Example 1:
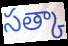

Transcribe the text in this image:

సత్కా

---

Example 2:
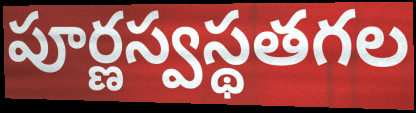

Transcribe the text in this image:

పూర్ణస్వస్థతగల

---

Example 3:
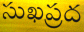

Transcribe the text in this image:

సుఖప్రద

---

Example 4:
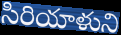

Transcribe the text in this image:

సిరియాళుని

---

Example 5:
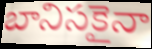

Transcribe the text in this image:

బానిసకైనా